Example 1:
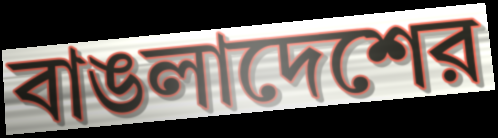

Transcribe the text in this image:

বাঙলাদেশের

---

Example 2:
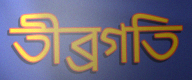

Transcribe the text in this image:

তীব্রগতি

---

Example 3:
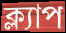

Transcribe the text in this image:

ক্ল্যাপ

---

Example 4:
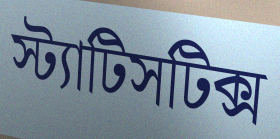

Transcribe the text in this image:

স্ট্যাটিসটিক্স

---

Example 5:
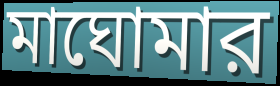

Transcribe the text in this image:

মাঘোমার